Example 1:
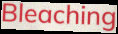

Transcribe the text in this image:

Bleaching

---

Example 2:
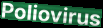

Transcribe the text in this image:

Poliovirus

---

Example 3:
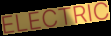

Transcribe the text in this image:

ELECTRIC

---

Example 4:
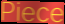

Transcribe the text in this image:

Piece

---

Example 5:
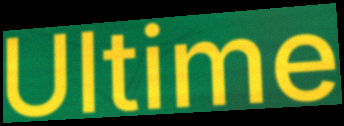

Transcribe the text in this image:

Ultime